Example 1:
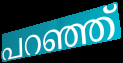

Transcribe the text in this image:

പറഞ്ഞ്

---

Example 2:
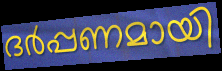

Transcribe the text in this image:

ദർപ്പണമായി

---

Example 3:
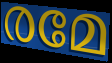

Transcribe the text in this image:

രമേ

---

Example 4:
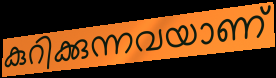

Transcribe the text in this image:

കുറിക്കുന്നവയാണ്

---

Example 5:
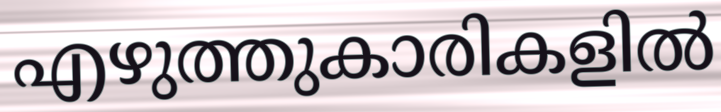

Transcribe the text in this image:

എഴുത്തുകാരികളിൽ